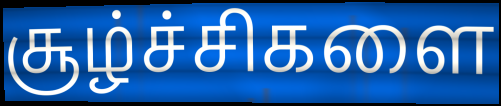
சூழ்ச்சிகளை